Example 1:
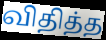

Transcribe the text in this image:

விதித்த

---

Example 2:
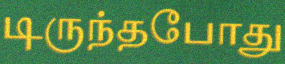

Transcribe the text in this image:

டிருந்தபோது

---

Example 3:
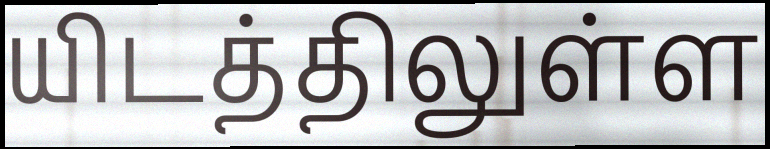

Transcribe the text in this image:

யிடத்திலுள்ள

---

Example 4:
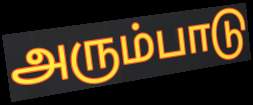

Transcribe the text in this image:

அரும்பாடு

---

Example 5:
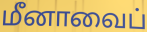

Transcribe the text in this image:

மீனாவைப்